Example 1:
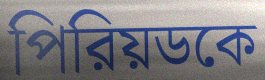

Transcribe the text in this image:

পিরিয়ডকে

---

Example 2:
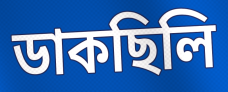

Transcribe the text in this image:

ডাকছিলি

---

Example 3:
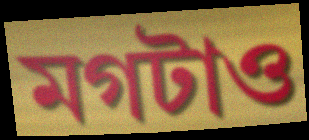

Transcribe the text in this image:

মগটাও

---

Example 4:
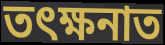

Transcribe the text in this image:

তৎক্ষনাত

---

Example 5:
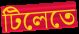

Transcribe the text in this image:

টিলেতে